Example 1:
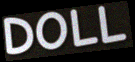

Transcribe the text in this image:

DOLL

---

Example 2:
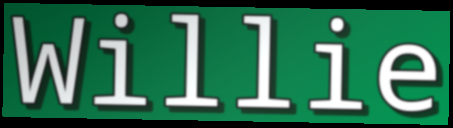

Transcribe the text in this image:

Willie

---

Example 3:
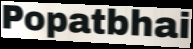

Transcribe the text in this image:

Popatbhai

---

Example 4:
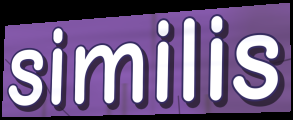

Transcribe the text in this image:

similis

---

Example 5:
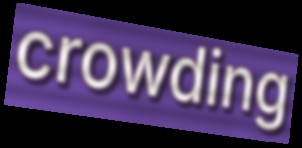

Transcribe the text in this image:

crowding